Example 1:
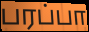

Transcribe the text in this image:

பரப்பா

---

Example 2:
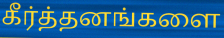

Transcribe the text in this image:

கீர்த்தனங்களை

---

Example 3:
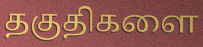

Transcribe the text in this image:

தகுதிகளை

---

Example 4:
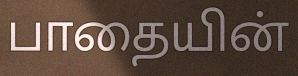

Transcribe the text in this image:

பாதையின்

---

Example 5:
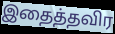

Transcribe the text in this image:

இதைத்தவிர